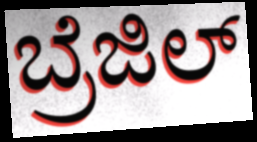
ಬ್ರೆಜಿಲ್